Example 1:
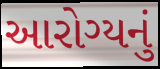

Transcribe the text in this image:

આરોગ્યનું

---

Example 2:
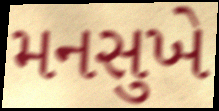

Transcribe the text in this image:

મનસુખે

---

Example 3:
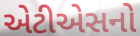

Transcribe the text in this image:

એટીએસનો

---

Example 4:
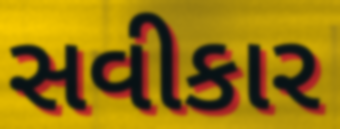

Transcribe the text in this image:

સવીકાર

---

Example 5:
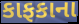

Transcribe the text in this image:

કાફકાના